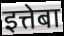
इत्तेबा